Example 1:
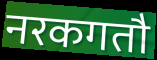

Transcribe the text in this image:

नरकगतौ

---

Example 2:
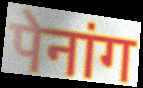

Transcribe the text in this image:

पेनांग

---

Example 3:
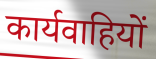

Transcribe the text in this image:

कार्यवाहियों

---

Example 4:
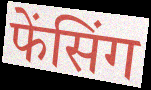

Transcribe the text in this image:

फेंसिंग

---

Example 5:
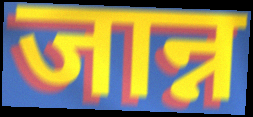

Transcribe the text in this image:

जान्न